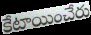
కేటాయించేరు